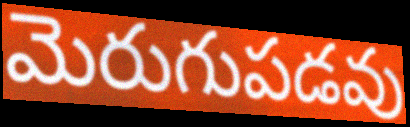
మెరుగుపడవు